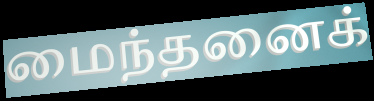
மைந்தனைக்